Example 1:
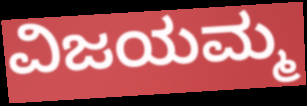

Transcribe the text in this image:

ವಿಜಯಮ್ಮ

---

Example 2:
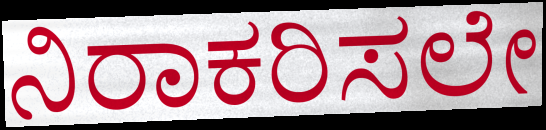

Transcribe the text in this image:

ನಿರಾಕರಿಸಲೇ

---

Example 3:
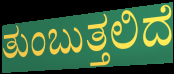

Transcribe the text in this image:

ತುಂಬುತ್ತಲಿದೆ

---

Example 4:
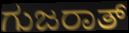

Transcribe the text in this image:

ಗುಜರಾತ್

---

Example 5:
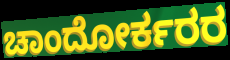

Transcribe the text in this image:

ಚಾಂದೋರ್ಕರರ